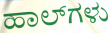
ಹಾಲ್‌ಗಳು